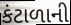
કંટાળાની